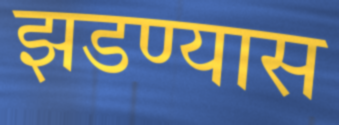
झडण्यास